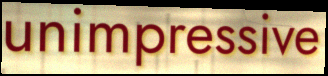
unimpressive